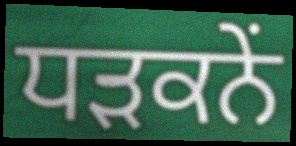
ਧੜਕਨੇਂ